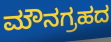
ಮೌನಗ್ರಹದ